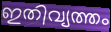
ഇതിവ്യത്തം